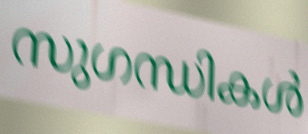
സുഗന്ധികൾ